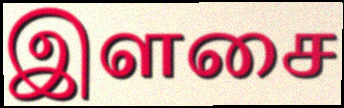
இளசை